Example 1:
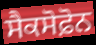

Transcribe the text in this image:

ਸੈਕਸੋਫ਼ੋਨ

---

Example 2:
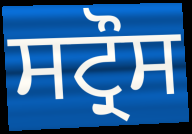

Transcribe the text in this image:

ਸਟ੍ਰੌਸ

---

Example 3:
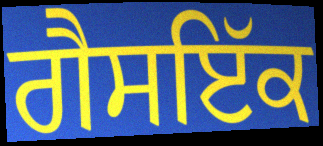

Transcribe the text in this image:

ਗੈਸਇੱਕ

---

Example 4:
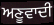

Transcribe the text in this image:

ਅਣੂਵਾਦੀ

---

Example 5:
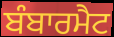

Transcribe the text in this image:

ਬੰਬਾਰਮੈਟ